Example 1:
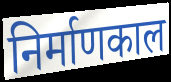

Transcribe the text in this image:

निर्माणकाल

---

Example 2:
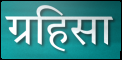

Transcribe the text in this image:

ग्रहिसा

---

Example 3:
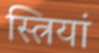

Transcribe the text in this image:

स्त्रियां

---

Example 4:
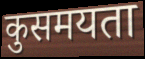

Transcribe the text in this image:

कुसमयता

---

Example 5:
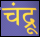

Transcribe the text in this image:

चंद्रू